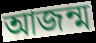
আজন্ম